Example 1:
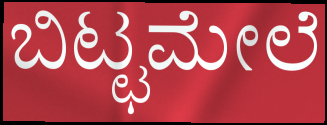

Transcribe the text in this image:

ಬಿಟ್ಟಮೇಲೆ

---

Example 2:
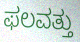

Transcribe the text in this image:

ಫಲವತ್ತು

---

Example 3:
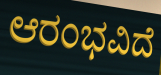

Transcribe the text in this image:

ಆರಂಭವಿದೆ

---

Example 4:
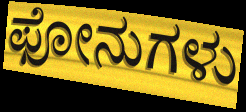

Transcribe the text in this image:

ಫೋನುಗಳು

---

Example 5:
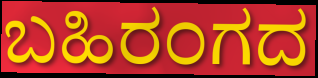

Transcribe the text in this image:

ಬಹಿರಂಗದ